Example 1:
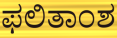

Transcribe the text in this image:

ಫಲಿತಾಂಶ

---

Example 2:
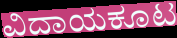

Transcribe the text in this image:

ವಿದಾಯಕೂಟ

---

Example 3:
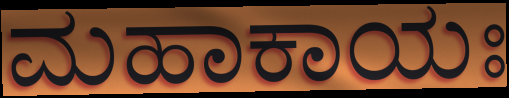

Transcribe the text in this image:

ಮಹಾಕಾಯಃ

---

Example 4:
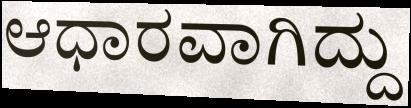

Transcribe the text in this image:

ಆಧಾರವಾಗಿದ್ದು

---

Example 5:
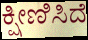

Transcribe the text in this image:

ಕ್ಷೀಣಿಸಿದೆ